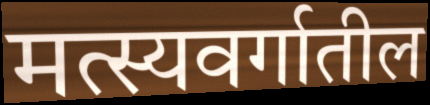
मत्स्यवर्गातील